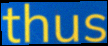
thus